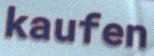
kaufen